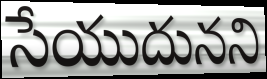
సేయుదునని